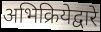
अभिक्रियेद्वारे